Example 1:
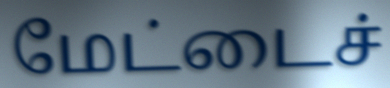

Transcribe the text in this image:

மேட்டைச்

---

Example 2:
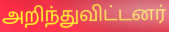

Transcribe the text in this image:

அறிந்துவிட்டனர்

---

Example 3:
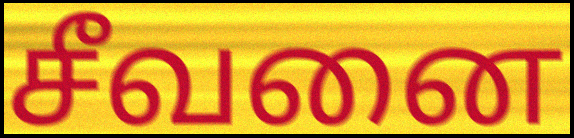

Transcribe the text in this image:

சீவனை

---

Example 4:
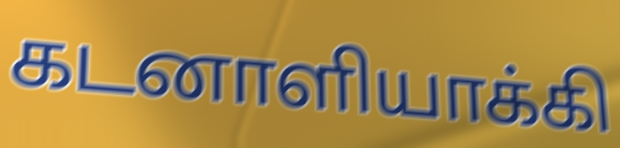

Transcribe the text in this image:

கடனாளியாக்கி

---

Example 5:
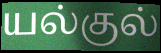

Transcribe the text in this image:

யல்குல்